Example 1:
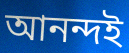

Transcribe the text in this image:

আনন্দই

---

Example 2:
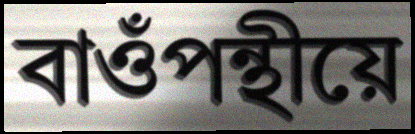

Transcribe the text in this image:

বাওঁপন্থীয়ে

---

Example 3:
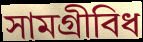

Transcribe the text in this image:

সামগ্ৰীবিধ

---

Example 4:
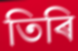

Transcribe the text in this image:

তিৰি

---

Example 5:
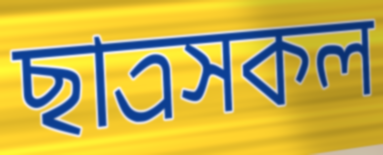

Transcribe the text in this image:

ছাত্ৰসকল